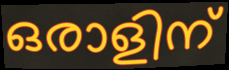
ഒരാളിന്